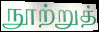
நூற்றுத்